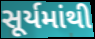
સૂર્યમાંથી